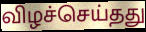
விழச்செய்தது